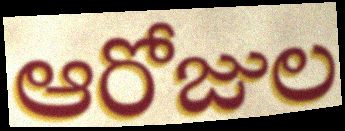
ఆరోజుల